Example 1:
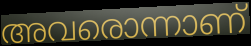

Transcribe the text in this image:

അവരൊന്നാണ്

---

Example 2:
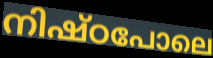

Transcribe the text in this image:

നിഷ്ഠപോലെ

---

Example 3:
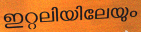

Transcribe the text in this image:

ഇറ്റലിയിലേയും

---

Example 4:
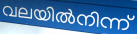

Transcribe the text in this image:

വലയിൽനിന്ന്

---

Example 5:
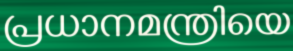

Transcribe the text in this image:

പ്രധാനമന്ത്രിയെ